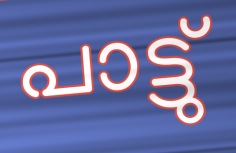
പാട്ടു്